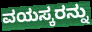
ವಯಸ್ಕರನ್ನು